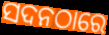
ସଦନଠାରେ